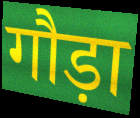
गौड़ा